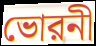
ভোরনী